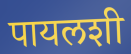
पायलशी